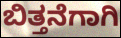
ಬಿತ್ತನೆಗಾಗಿ